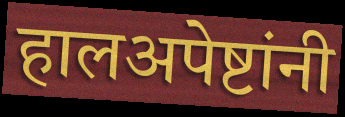
हालअपेष्टांनी